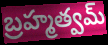
బ్రహ్మత్వమ్